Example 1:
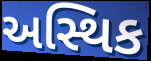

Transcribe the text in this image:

અસ્થિક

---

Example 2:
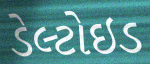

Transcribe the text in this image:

ડેલ્ટોઇડ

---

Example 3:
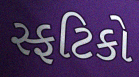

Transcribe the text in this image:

સ્ફટિકો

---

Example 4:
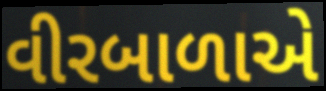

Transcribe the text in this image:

વીરબાળાએ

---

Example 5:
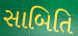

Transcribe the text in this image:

સાબિતિ